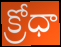
క్రోధా